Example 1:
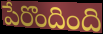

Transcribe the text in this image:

పేరొందింది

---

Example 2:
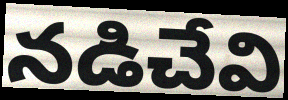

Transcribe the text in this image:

నడిచేవి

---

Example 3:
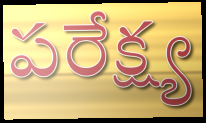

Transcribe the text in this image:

పరేక్ష్య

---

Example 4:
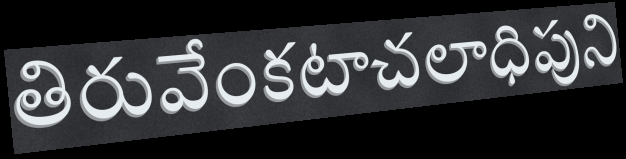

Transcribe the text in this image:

తిరువేంకటాచలాధిపుని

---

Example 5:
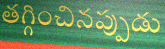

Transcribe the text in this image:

తగ్గించినప్పుడు